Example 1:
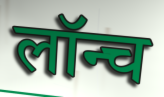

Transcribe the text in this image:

लॉन्‍च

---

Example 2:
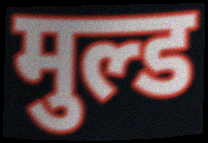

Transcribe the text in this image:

मुल्ड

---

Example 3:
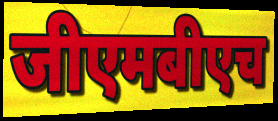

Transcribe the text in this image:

जीएमबीएच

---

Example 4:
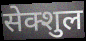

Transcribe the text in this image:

सेक्शुल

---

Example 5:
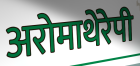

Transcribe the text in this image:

अरोमाथेरेपी